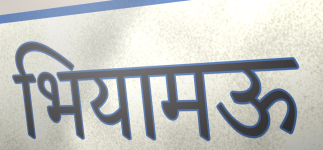
भियामऊ